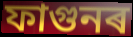
ফাগুনৰ